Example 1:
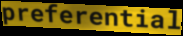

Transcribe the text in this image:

preferential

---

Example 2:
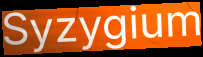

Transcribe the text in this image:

Syzygium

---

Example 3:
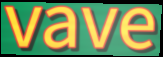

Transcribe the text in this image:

vave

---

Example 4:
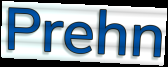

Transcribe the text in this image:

Prehn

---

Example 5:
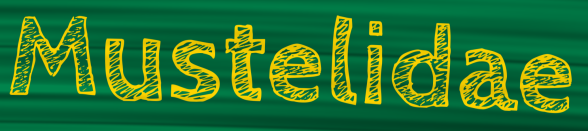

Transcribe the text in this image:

Mustelidae